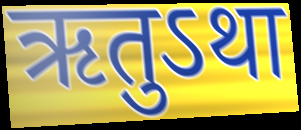
ऋतुऽथा